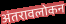
अंतरावलोकन